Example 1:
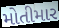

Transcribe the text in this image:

મોતીમાર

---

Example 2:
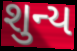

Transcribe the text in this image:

શુન્ય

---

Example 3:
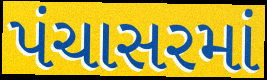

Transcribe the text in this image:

પંચાસરમાં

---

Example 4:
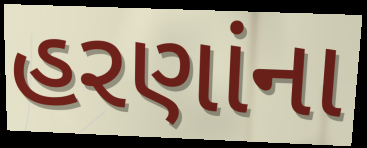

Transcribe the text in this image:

હરણાંના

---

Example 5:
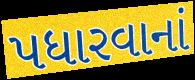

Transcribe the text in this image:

પધારવાનાં